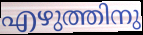
എഴുത്തിനു